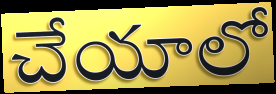
చేయాలో